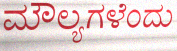
ಮೌಲ್ಯಗಳೆಂದು